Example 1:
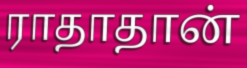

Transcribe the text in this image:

ராதாதான்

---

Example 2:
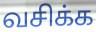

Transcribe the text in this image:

வசிக்க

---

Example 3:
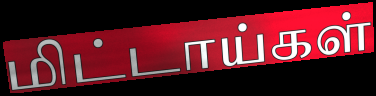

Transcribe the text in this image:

மிட்டாய்கள்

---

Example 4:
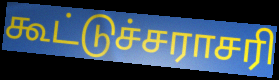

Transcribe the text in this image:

கூட்டுச்சராசரி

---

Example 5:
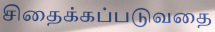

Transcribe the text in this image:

சிதைக்கப்படுவதை